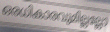
ഒരധികാരവുമില്ലല്ലോ